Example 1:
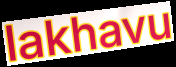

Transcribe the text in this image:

lakhavu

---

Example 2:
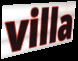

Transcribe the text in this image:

villa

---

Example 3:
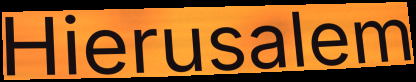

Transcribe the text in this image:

Hierusalem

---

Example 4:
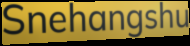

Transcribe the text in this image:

Snehangshu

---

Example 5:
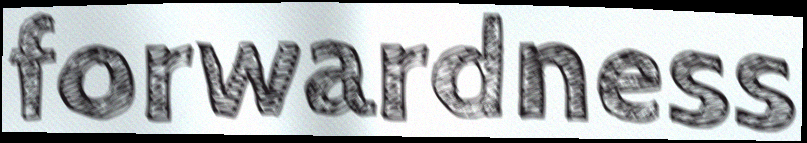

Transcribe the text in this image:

forwardness